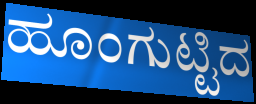
ಹೂಂಗುಟ್ಟಿದ